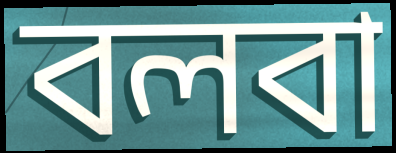
বলবা